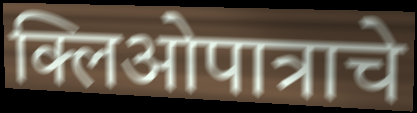
क्लिओपात्राचे